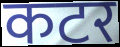
कटर